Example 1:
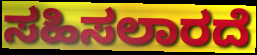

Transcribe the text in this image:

ಸಹಿಸಲಾರದೆ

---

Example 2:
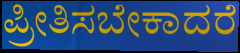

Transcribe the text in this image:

ಪ್ರೀತಿಸಬೇಕಾದರೆ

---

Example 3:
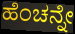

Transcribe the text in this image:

ಹೆಂಚನ್ನೇ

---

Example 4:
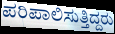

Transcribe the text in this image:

ಪರಿಪಾಲಿಸುತ್ತಿದ್ದರು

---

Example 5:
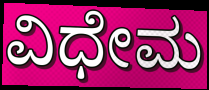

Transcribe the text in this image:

ವಿಧೇಮ